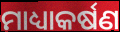
ମାଧ୍ୟାକର୍ଷଣ